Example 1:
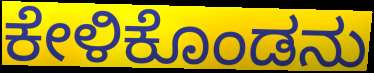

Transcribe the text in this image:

ಕೇಳಿಕೊಂಡನು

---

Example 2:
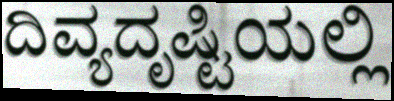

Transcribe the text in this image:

ದಿವ್ಯದೃಷ್ಟಿಯಲ್ಲಿ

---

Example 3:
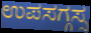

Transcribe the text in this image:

ಉಪಸಗ್ಗಸ್ಸ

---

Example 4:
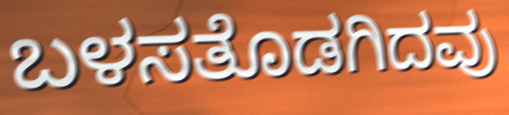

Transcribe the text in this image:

ಬಳಸತೊಡಗಿದವು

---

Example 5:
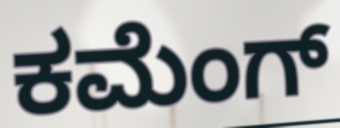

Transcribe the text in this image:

ಕಮೆಂಗ್